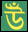
উঁ